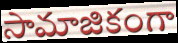
సామాజికంగా